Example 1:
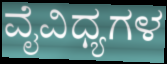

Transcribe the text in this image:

ವೈವಿಧ್ಯಗಳ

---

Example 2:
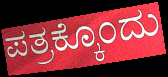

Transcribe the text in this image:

ಪತ್ರಕ್ಕೊಂದು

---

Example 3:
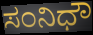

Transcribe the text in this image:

ಸಂನಿಧೌ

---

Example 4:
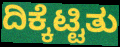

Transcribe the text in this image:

ದಿಕ್ಕೆಟ್ಟಿತು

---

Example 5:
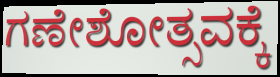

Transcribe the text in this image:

ಗಣೇಶೋತ್ಸವಕ್ಕೆ